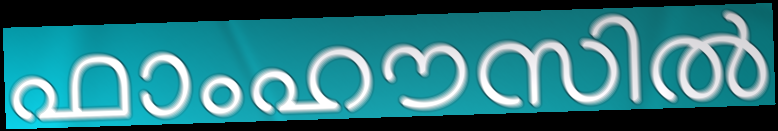
ഫാംഹൗസിൽ